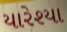
યારેશ્યા